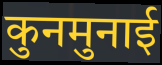
कुनमुनाई